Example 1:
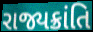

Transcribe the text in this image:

રાજ્યક્રાંતિ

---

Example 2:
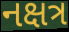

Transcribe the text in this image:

નક્ષત્ર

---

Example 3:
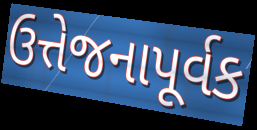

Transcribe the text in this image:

ઉત્તેજનાપૂર્વક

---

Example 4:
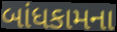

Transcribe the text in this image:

બાંધકામના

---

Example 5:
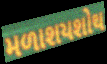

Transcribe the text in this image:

મળાશયશોથ